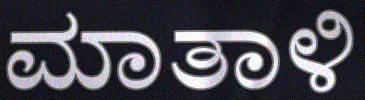
ಮಾತಾಳಿ